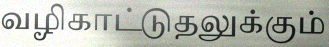
வழிகாட்டுதலுக்கும்